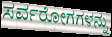
ಸರ್ವರೋಗಗಳನ್ನು